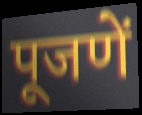
पूजणें